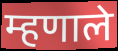
म्हणाले